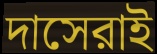
দাসেরাই